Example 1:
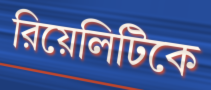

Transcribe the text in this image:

রিয়েলিটিকে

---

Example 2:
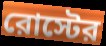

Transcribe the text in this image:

রোস্টের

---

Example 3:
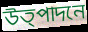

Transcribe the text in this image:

উত্পাদনে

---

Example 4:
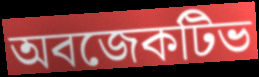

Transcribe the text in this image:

অবজেকটিভ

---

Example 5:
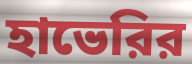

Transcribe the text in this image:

হাভেরির